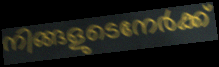
നിങ്ങളുടെനേർക്ക്